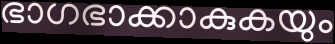
ഭാഗഭാക്കാകുകയും